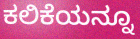
ಕಲಿಕೆಯನ್ನೂ